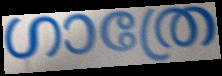
ഗാത്രേ